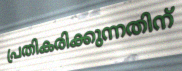
പ്രതികരിക്കുന്നതിന്